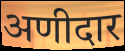
अणीदार